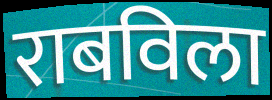
राबविला